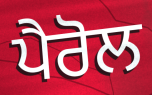
ਪੈਰੋਲ